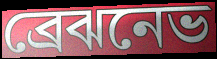
ব্রেঝনেভ